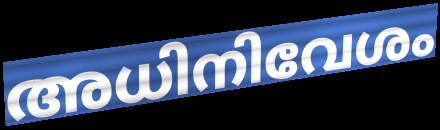
അധിനിവേശം